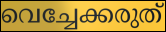
വെച്ചേക്കരുത്